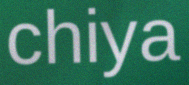
chiya